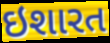
ઇશારત